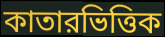
কাতারভিত্তিক